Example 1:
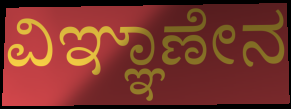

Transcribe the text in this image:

ವಿಞ್ಞಾಣೇನ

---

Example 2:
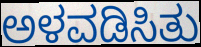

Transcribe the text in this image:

ಅಳವಡಿಸಿತು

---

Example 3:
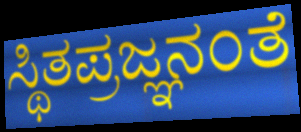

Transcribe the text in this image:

ಸ್ಥಿತಪ್ರಜ್ಞನಂತೆ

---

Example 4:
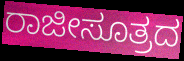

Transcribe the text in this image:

ರಾಜೀಸೂತ್ರದ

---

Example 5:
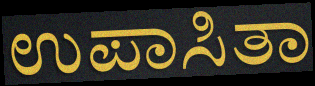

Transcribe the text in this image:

ಉಪಾಸಿತಾ